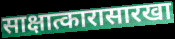
साक्षात्कारासारखा